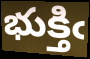
భుక్తిఁ